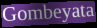
Gombeyata